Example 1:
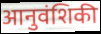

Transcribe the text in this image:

आनुवंशिकी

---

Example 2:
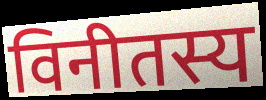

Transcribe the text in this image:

विनीतस्य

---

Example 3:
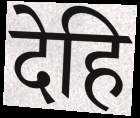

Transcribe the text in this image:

देहि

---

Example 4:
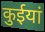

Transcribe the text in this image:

कुईयां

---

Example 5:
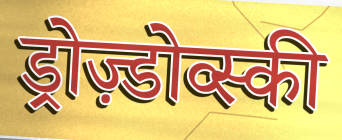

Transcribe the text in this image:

ड्रोज़्डोव्स्की